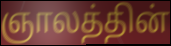
ஞாலத்தின்